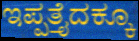
ಇಪ್ಪತ್ತೈದಕ್ಕೂ